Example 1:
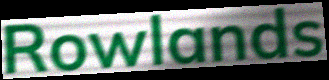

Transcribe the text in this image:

Rowlands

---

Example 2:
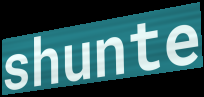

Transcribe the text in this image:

shunte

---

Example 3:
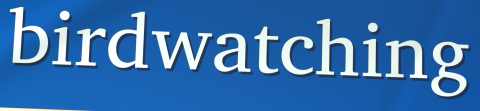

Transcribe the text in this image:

birdwatching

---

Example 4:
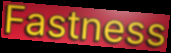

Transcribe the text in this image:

Fastness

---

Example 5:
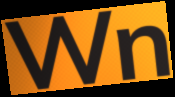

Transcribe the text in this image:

Wn